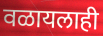
वळायलाही